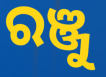
ରଞ୍ଜୁ